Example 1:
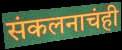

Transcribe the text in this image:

संकलनाचंही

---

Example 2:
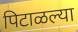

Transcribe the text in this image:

पिटाळल्या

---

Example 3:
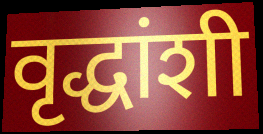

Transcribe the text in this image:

वृद्धांशी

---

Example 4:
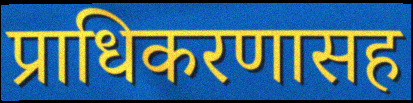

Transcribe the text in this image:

प्राधिकरणासह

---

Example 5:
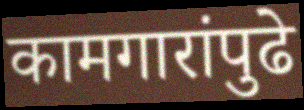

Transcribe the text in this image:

कामगारांपुढे